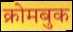
क्रोमबुक